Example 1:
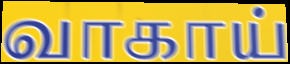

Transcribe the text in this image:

வாகாய்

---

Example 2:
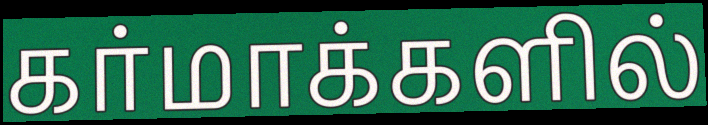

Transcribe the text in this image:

கர்மாக்களில்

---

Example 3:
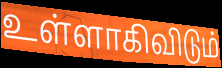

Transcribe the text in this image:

உள்ளாகிவிடும்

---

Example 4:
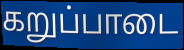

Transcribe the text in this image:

கறுப்பாடை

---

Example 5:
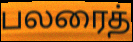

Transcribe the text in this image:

பலரைத்